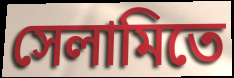
সেলামিতে